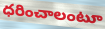
ధరించాలంటూ